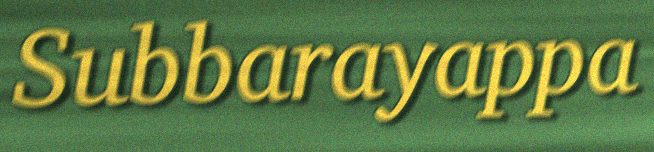
Subbarayappa